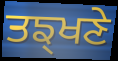
ਤਙ੍ਖਣੇ